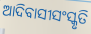
ଆଦିବାସୀସଂସ୍କୃତି